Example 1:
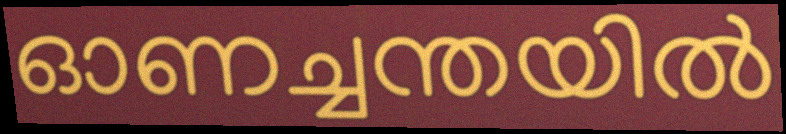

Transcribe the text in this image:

ഓണച്ചന്തയിൽ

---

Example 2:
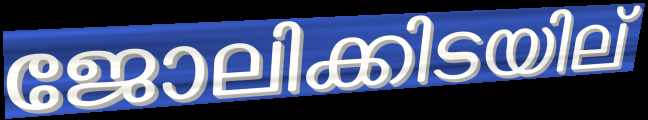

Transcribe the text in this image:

ജോലിക്കിടയില്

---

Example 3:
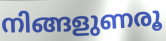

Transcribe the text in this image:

നിങ്ങളുണരൂ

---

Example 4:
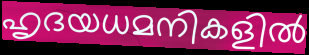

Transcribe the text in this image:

ഹൃദയധമനികളിൽ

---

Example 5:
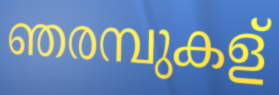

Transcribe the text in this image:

ഞരമ്പുകള്